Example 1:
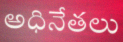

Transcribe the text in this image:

అధినేతలు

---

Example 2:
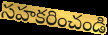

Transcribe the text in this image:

సహకరించండి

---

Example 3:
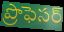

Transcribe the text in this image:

ప్రొఫెసర్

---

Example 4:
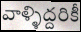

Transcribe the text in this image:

వాళ్ళిద్దరికీ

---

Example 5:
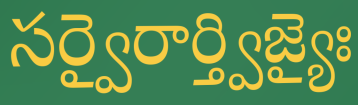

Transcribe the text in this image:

సర్వైరార్త్విజ్యైః